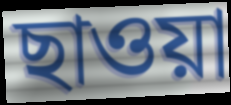
ছাওয়া